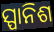
ସ୍ପାନିଶ